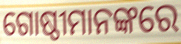
ଗୋଷ୍ଠୀମାନଙ୍କରେ